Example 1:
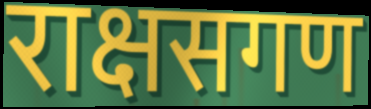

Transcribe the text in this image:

राक्षसगण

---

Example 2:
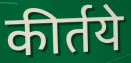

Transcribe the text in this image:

कीर्तये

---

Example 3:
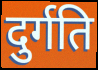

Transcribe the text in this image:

दुर्गति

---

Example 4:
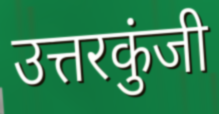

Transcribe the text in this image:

उत्तरकुंजी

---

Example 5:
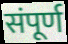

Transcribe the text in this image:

संपूर्ण